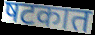
षटकात